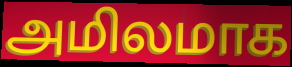
அமிலமாக